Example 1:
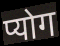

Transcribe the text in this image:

प्योग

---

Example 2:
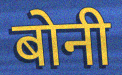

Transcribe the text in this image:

बोनी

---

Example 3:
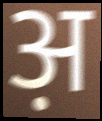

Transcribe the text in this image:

अ़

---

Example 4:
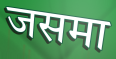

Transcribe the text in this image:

जसमा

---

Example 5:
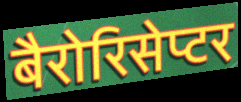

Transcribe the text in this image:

बैरोरिसेप्टर